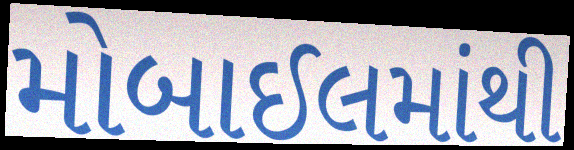
મોબાઈલમાંથી